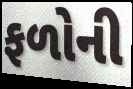
ફળોની